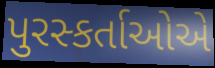
પુરસ્કર્તાઓએ